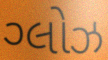
ગ્લોઝ